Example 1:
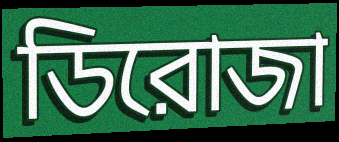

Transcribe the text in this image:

ডিরোজা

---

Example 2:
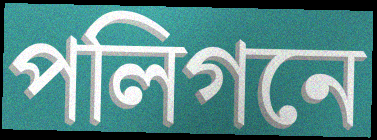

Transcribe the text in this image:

পলিগনে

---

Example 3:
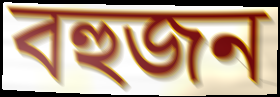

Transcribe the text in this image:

বহুজন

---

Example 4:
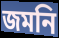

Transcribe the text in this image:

জমনি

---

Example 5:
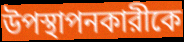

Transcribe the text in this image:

উপস্থাপনকারীকে